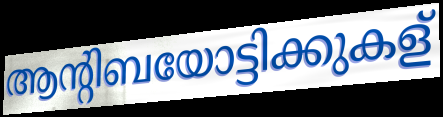
ആന്റിബയോട്ടിക്കുകള്